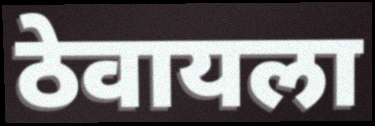
ठेवायला